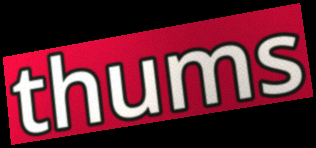
thums